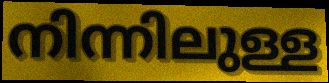
നിന്നിലുള്ള